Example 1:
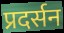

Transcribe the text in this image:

प्रदर्सन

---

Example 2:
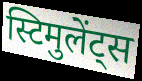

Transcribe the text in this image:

स्टिमुलेंट्स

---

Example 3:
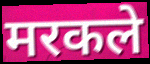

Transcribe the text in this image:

मरकले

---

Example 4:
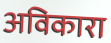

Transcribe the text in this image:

अविकारा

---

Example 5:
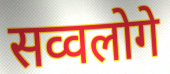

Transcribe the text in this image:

सव्वलोगे